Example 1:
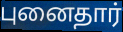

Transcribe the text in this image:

புனைதார்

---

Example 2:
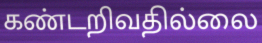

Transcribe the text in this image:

கண்டறிவதில்லை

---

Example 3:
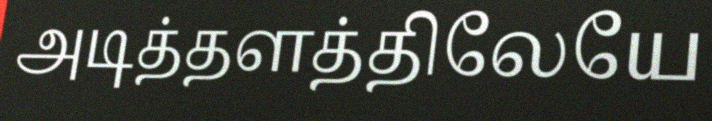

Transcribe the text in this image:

அடித்தளத்திலேயே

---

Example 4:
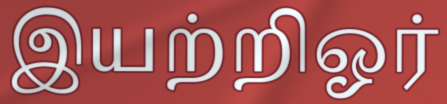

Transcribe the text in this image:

இயற்றிஓர்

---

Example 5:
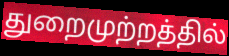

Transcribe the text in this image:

துறைமுற்றத்தில்